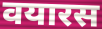
वयारस